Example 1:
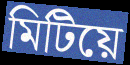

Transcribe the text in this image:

মিটিয়ে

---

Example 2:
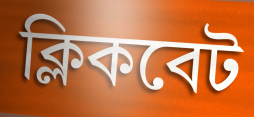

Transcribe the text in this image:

ক্লিকবেট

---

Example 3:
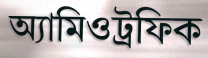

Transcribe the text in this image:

অ্যামিওট্রফিক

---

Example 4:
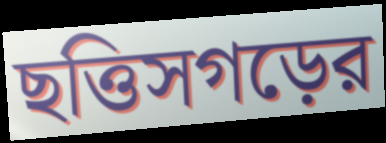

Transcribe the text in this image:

ছত্তিসগড়ের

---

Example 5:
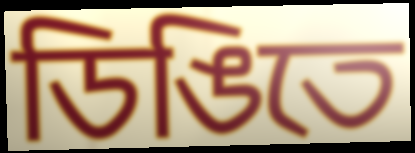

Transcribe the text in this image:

ডিঙিতে